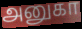
அனுகா